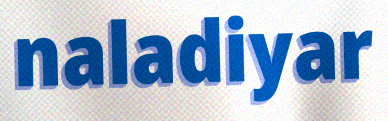
naladiyar